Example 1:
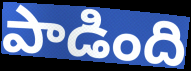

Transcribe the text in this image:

పాడింది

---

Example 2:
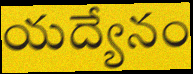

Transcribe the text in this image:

యద్యేనం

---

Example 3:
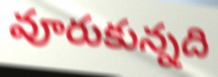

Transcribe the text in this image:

వూరుకున్నది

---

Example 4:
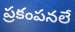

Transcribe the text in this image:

ప్రకంపనలే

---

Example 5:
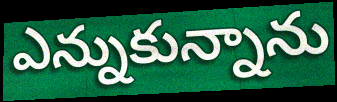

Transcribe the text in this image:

ఎన్నుకున్నాను